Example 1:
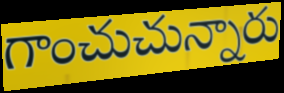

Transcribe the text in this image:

గాంచుచున్నారు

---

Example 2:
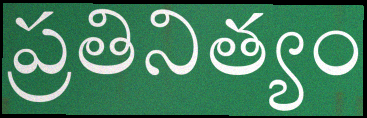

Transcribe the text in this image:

ప్రతినిత్యం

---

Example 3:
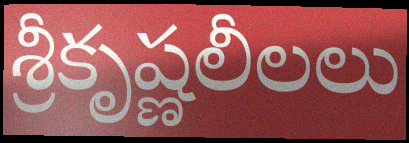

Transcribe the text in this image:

శ్రీకృష్ణలీలలు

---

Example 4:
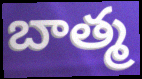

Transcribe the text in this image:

బాత్మ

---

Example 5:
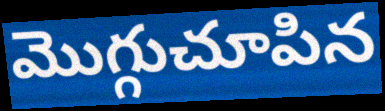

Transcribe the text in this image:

మొగ్గుచూపిన